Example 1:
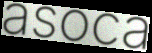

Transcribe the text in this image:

asoca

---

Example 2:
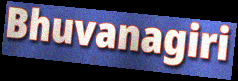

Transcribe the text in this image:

Bhuvanagiri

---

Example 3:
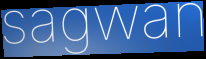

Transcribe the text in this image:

sagwan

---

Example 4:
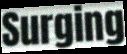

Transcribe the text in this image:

Surging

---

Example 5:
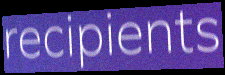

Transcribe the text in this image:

recipients